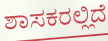
ಶಾಸಕರಲ್ಲಿದೆ